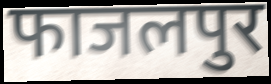
फाजलपुर